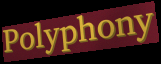
Polyphony